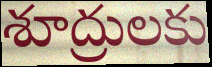
శూద్రులకు